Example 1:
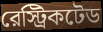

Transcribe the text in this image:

রেস্ট্রিকটেড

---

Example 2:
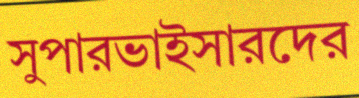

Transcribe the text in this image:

সুপারভাইসারদের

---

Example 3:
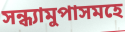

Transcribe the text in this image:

সন্ধ্যামুপাসমহে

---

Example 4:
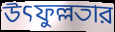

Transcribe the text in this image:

উৎফুল্লতার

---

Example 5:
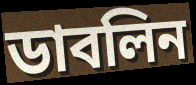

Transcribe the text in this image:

ডাবলিন